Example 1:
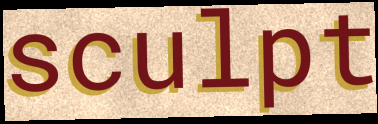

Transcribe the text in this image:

sculpt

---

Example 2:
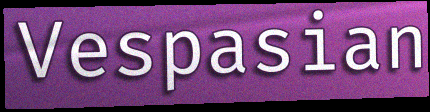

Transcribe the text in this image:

Vespasian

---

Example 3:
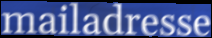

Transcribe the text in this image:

mailadresse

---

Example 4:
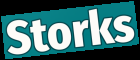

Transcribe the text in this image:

Storks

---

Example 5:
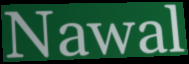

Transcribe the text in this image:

Nawal